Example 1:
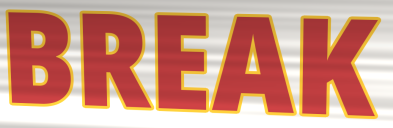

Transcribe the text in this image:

BREAK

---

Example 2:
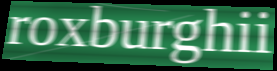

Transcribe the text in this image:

roxburghii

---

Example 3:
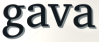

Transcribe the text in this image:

gava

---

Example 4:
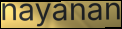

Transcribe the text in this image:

nayanan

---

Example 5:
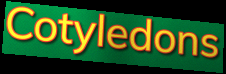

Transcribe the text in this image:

Cotyledons